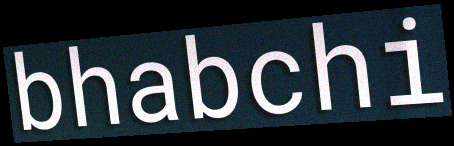
bhabchi